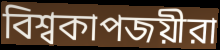
বিশ্বকাপজয়ীরা